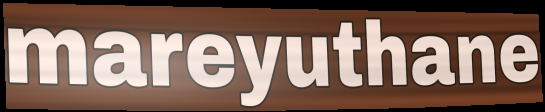
mareyuthane